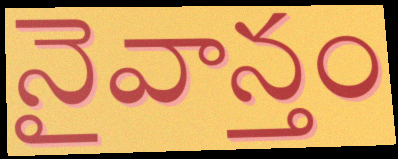
నైవాన్తం